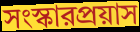
সংস্কারপ্রয়াস